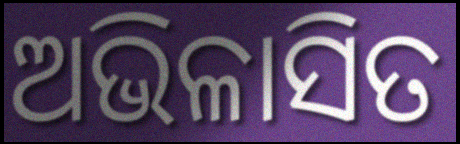
ଅଭିଳାସିତ